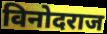
विनोदराज